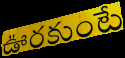
ఊరకుంటే